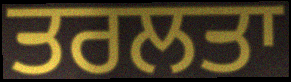
ਤਰਲਤਾ